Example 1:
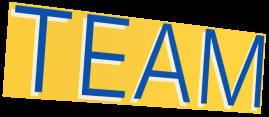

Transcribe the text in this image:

TEAM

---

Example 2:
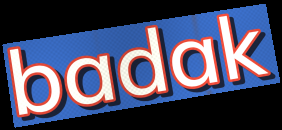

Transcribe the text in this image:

badak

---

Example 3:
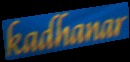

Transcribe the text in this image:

kadhanar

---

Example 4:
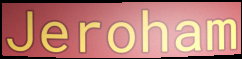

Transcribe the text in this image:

Jeroham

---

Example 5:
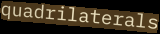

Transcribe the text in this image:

quadrilaterals